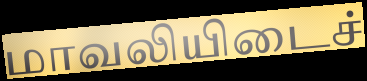
மாவலியிடைச்